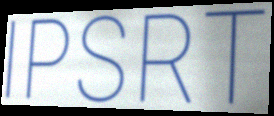
IPSRT